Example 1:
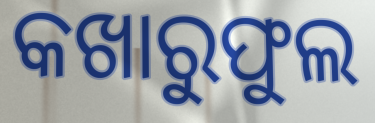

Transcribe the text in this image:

କଖାରୁଫୁଲ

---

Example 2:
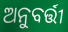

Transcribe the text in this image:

ଅନୁବର୍ତ୍ତୀ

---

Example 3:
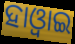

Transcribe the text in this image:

ହାଓ୍ୱାଇ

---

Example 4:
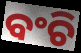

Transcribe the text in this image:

ବଂଚି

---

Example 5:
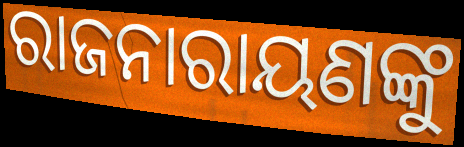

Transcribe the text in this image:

ରାଜନାରାୟଣଙ୍କୁ